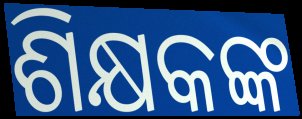
ଶିକ୍ଷକଙ୍କ